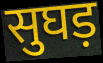
सुघड़